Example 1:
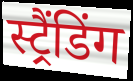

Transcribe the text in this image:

स्ट्रैंडिंग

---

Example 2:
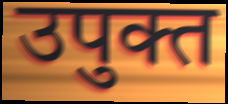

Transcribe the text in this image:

उपुक्त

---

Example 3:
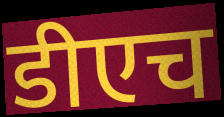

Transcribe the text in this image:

डीएच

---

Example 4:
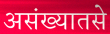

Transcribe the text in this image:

असंख्यातसे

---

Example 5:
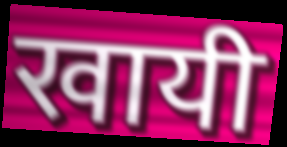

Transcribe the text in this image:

खायी